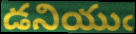
డనియుఁ